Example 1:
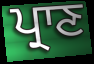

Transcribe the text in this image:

ਪ੍ਰਾਣ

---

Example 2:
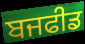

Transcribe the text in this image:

ਬਜਫੀਡ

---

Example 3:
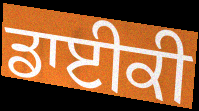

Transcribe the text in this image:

ਡਾਈਕੀ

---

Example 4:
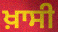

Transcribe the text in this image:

ਖ਼ਾਸੀ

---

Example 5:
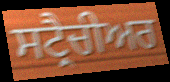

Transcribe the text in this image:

ਸਟ੍ਰੈਚੀਅਰ